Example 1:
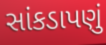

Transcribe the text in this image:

સાંકડાપણું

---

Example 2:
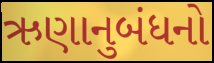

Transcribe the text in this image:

ઋણાનુબંધનો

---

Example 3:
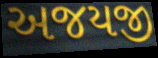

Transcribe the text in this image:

અજયજી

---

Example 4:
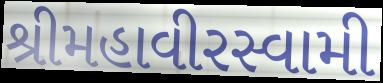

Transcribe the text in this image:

શ્રીમહાવીરસ્વામી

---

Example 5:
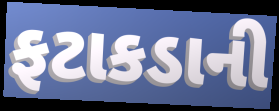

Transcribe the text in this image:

ફટાકડાની